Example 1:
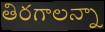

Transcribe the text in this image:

తిరగాలన్నా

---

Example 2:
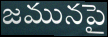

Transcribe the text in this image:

జమునపై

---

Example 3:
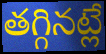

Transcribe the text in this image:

తగ్గినట్లే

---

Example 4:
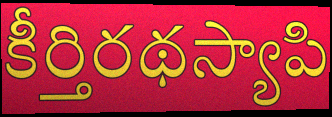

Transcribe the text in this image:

కీర్తిరథస్యాపి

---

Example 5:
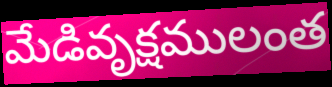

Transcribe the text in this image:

మేడివృక్షములంత